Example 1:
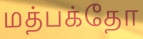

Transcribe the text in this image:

மத்பக்தோ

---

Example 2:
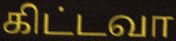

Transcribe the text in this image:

கிட்டவா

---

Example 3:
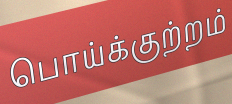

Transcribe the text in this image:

பொய்க்குற்றம்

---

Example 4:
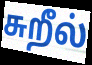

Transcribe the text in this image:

சுறீல்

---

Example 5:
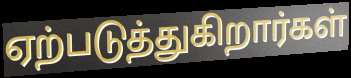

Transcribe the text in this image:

ஏற்படுத்துகிறார்கள்